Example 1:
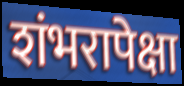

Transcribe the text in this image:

शंभरापेक्षा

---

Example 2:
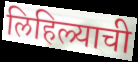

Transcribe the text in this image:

लिहिल्याची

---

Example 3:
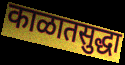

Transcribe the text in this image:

काळातसुद्धा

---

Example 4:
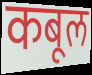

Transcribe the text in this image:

कबूल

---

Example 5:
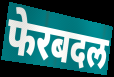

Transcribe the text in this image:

फेरबदल